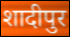
शादीपुर